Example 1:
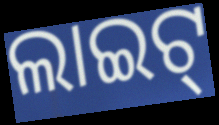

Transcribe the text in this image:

ଲାଇଟ୍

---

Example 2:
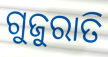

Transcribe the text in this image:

ଗୁଜୁରାତି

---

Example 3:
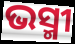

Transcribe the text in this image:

ଭସ୍ମୀ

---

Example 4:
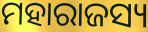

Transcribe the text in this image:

ମହାରାଜସ୍ୟ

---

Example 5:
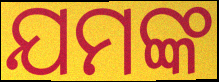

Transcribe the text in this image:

ଯମଙ୍କ